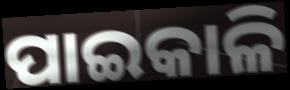
ପାଇକାଳି